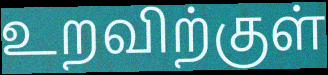
உறவிற்குள்